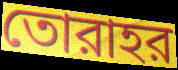
তোরাহর